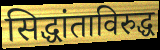
सिद्धांताविरुद्ध